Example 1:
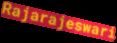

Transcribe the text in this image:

Rajarajeswari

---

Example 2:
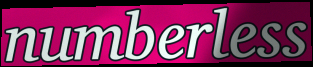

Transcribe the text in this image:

numberless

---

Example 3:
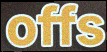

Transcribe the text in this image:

offs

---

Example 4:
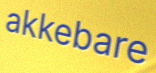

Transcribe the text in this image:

akkebare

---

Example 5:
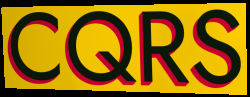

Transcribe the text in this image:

CQRS